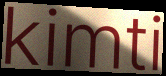
kimti